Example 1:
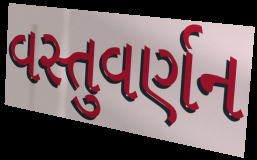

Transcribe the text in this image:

વસ્તુવર્ણન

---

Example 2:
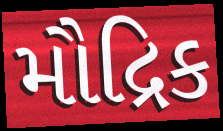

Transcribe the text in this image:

મૌદ્રિક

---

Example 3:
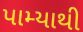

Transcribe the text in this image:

પામ્યાથી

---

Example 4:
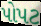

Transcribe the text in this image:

પોપટ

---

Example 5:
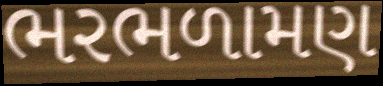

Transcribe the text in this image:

ભરભળામણ